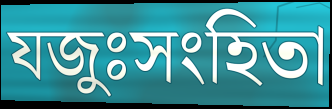
যজুঃসংহিতা